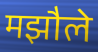
मझौले